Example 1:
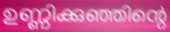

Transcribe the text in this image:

ഉണ്ണിക്കുഞ്ഞിന്റെ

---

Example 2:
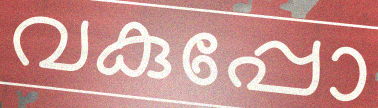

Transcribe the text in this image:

വകുപ്പോ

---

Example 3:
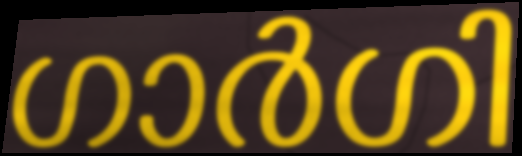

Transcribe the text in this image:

ഗാർഗി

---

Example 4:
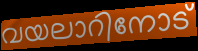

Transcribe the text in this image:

വയലാറിനോട്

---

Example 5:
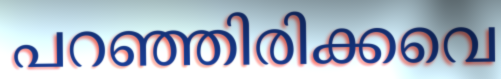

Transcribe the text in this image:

പറഞ്ഞിരിക്കവെ